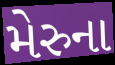
મેરુના